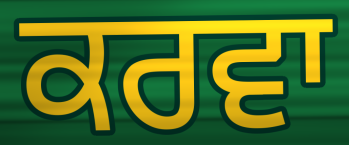
ਕਰਵਾ